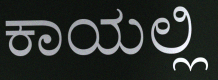
ಕಾಯಲ್ಲಿ